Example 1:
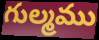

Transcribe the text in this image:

గుల్మము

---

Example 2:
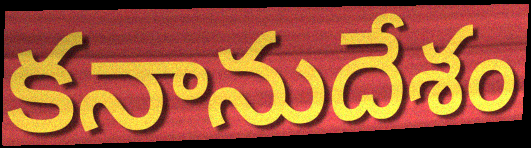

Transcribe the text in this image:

కనానుదేశం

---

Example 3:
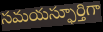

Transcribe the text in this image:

సమయస్ఫూర్తిగా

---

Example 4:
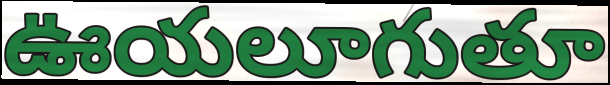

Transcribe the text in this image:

ఊయలూగుతూ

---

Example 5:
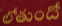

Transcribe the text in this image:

లోతుందో